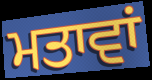
ਮਤਾਵਾਂ